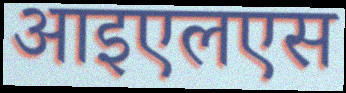
आइएलएस